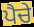
ਪੈਚੇ